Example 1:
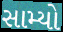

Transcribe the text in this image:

સામ્યો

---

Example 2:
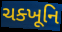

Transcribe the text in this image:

ચક્ખૂનિ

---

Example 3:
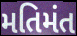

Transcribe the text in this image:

મતિમંત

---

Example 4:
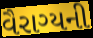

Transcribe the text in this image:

વૈરાગ્યની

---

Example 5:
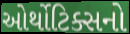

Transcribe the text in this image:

ઓર્થોટિક્સનો